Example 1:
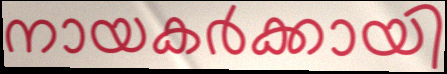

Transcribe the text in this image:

നായകർക്കായി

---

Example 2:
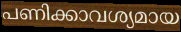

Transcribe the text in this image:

പണിക്കാവശ്യമായ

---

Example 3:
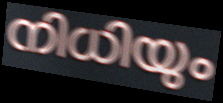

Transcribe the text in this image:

നിധിയും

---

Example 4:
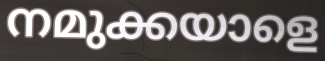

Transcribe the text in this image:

നമുക്കയാളെ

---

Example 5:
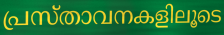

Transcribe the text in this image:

പ്രസ്താവനകളിലൂടെ